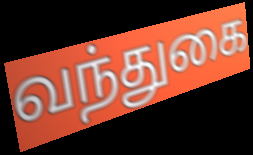
வந்துகை